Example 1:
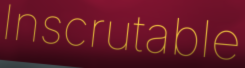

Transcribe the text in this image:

Inscrutable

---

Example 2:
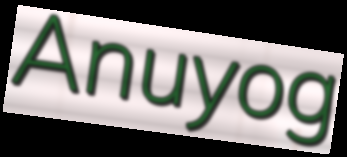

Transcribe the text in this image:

Anuyog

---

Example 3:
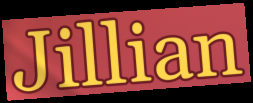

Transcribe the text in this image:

Jillian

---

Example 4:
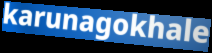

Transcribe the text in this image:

karunagokhale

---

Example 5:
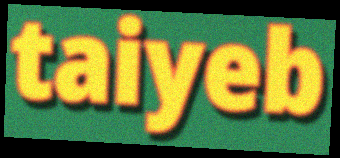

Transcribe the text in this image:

taiyeb